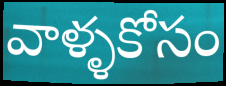
వాళ్ళకోసం